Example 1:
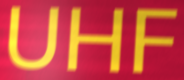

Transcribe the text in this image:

UHF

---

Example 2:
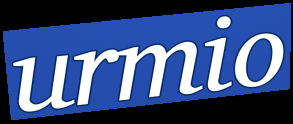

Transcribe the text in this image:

urmio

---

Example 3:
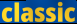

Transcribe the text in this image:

classic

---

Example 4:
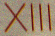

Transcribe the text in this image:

XIII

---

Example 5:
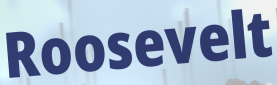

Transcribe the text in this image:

Roosevelt